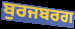
ਬੁਰਜਬਰਗ